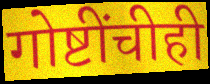
गोष्टींचीही